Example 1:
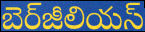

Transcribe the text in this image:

బెర్‌జీలియస్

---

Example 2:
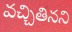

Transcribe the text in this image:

వచ్చితినని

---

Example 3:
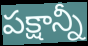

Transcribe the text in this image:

పక్షాన్నీ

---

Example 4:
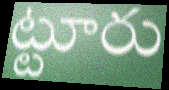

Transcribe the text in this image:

ట్టూరు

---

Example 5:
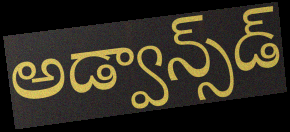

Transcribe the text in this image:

అడ్వాన్స్‌డ్